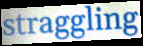
straggling